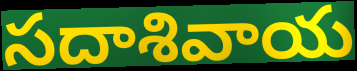
సదాశివాయ